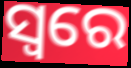
ସ୍ବରେ